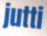
jutti